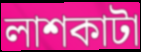
লাশকাটা